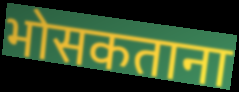
भोसकताना